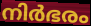
നിർഭരം